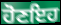
ਹੋਣਇਹ